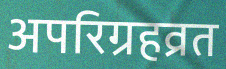
अपरिग्रहव्रत